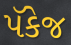
પૅકેજ